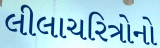
લીલાચરિત્રોનો